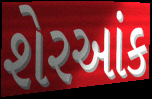
શેરઆંક